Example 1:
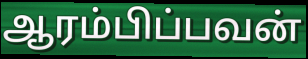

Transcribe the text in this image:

ஆரம்பிப்பவன்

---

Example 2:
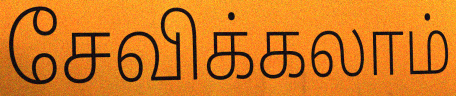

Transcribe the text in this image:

சேவிக்கலாம்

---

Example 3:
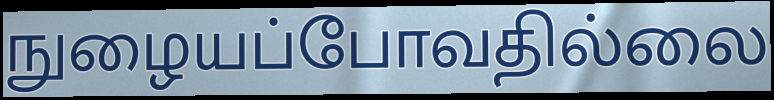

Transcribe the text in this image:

நுழையப்போவதில்லை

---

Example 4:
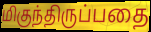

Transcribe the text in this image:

மிகுந்திருப்பதை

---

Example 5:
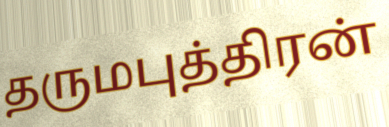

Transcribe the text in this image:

தருமபுத்திரன்